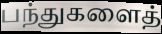
பந்துகளைத்